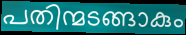
പതിന്മടങ്ങാകും